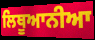
ਲਿਥੂਆਨੀਆ